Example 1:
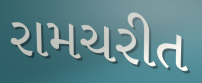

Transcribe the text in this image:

રામચરીત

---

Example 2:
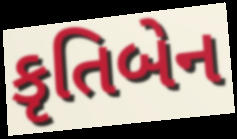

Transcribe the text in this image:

કૃતિબેન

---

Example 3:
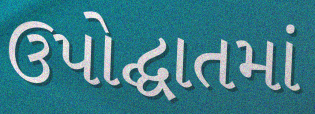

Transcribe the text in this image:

ઉપોદ્ઘાતમાં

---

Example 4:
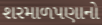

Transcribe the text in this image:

શરમાળપણાનો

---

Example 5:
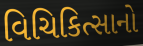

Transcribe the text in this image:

વિચિકિત્સાનો